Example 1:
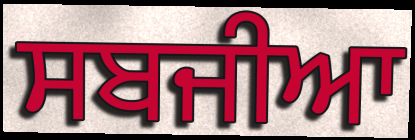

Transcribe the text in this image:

ਸਬਜੀਆ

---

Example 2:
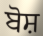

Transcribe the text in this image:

ਬੋਸ਼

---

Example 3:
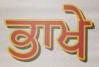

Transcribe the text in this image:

ਭਾਖੇ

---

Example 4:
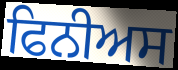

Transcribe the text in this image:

ਫਿਨੀਅਸ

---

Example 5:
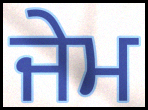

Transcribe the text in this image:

ਜੇਮ